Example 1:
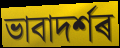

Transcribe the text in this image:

ভাবাদৰ্শৰ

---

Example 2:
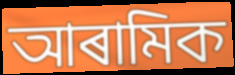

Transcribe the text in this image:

আৰামিক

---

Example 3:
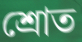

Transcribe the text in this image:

শ্ৰোত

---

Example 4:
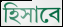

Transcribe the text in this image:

হিসাবে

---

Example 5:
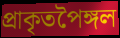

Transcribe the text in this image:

প্ৰাকৃতপৈঙ্গল